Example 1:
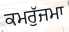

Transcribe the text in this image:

ਕਮਰੁੱਜਮਾ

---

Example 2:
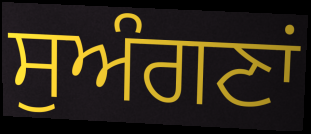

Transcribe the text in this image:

ਸੁਅੰਗਣਾਂ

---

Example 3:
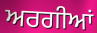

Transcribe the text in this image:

ਅਰਗੀਆਂ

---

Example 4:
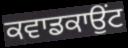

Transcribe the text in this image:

ਕਵਾਡਕਾਉਂਟ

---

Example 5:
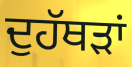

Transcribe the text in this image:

ਦੁਹੱਥੜਾਂ